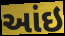
આંઇ